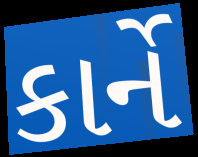
કાર્ને